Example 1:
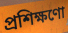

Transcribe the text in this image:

প্ৰশিক্ষণো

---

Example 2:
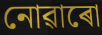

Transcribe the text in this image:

নোৱাৰো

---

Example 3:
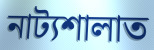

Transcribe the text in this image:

নাট্যশালাত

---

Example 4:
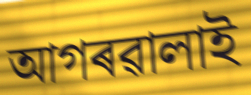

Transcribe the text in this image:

আগৰৱালাই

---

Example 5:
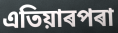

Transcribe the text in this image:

এতিয়াৰপৰা